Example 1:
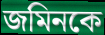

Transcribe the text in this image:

জমিনকে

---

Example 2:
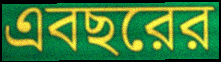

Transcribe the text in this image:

এবছরের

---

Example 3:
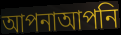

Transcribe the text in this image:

আপনাআপনি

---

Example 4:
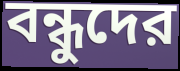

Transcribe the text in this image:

বন্ধুদের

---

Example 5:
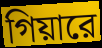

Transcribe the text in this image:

গিয়ারে